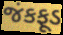
જંકફૂડ